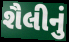
શૈલીનું